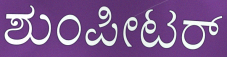
ಶುಂಪೀಟರ್